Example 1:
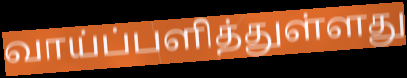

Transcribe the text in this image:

வாய்ப்பளித்துள்ளது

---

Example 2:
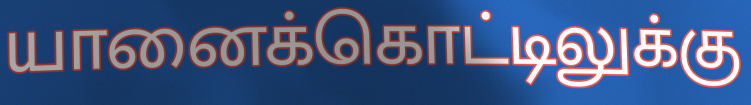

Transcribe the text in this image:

யானைக்கொட்டிலுக்கு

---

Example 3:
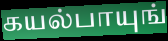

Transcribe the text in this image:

கயல்பாயுங்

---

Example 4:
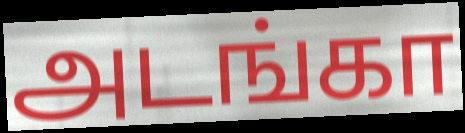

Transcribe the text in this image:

அடங்கா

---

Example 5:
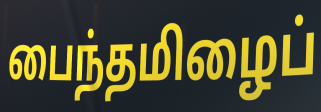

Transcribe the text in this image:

பைந்தமிழைப்